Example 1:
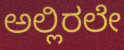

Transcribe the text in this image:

ಅಲ್ಲಿರಲೇ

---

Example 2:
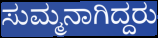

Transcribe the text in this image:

ಸುಮ್ಮನಾಗಿದ್ದರು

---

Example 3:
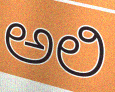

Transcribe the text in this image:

ಅಲಿ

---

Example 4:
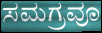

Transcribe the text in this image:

ಸಮಗ್ರವೂ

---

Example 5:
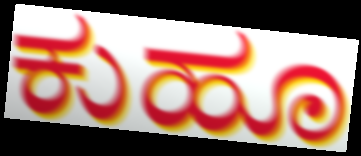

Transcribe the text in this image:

ಕುಹೂ